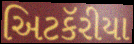
અિટકૅરીયા